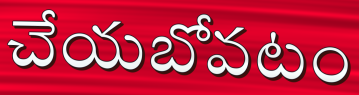
చేయబోవటం